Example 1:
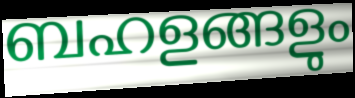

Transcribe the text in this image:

ബഹളങ്ങളും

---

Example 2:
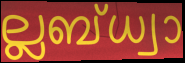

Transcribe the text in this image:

ല്ലബ്ധ്വാ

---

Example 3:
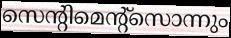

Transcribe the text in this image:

സെന്റിമെന്റ്സൊന്നും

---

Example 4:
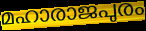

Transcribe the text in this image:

മഹാരാജപുരം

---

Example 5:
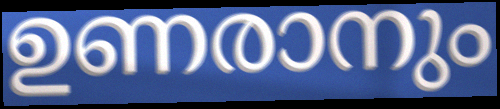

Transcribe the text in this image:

ഉണരാനും